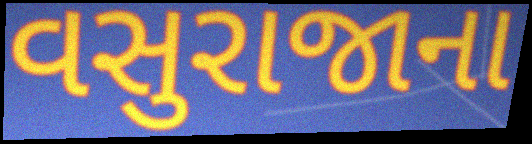
વસુરાજાના